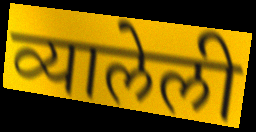
व्यालेली